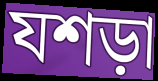
যশড়া